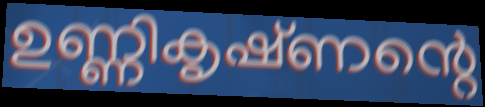
ഉണ്ണികൃഷ്‌ണന്റെ